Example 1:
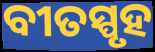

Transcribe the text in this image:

ବୀତସ୍ପୃହ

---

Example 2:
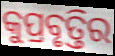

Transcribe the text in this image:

କୁପ୍ରବୃତ୍ତିର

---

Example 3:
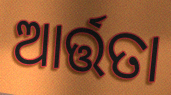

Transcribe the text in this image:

ଆର୍ତ୍ତତା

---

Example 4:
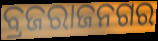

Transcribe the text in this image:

ବ୍ରଜରାଜନଗର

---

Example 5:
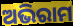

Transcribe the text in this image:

ଅଭିରାମ